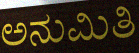
ಅನುಮಿತಿ